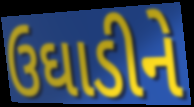
ઉઘાડીને